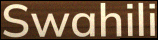
Swahili